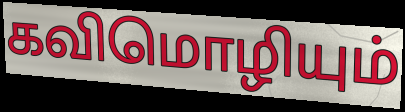
கவிமொழியும்